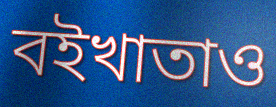
বইখাতাও